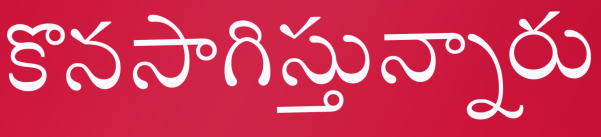
కొనసాగిస్తున్నారు